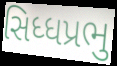
સિધ્ધપ્રભુ